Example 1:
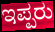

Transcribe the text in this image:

ಇಪ್ಪರು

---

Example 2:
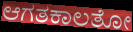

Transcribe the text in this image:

ಆಗತಕಾಲತೋ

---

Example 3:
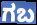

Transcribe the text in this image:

ಗಬ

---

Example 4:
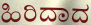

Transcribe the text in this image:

ಹಿರಿದಾದ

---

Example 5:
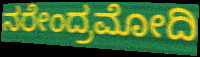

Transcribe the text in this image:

ನರೇಂದ್ರಮೋದಿ